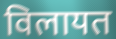
विलायत